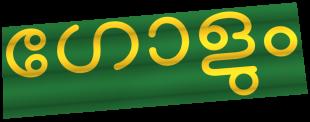
ഗോളും